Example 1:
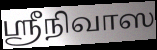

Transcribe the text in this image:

ஸ்ரீநிவாஸ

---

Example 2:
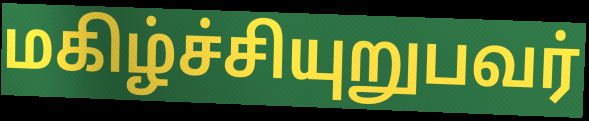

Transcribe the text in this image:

மகிழ்ச்சியுறுபவர்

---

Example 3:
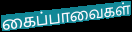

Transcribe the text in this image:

கைப்பாவைகள்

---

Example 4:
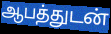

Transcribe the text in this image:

ஆபத்துடன்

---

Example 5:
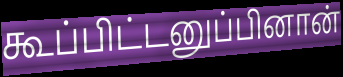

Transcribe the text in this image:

கூப்பிட்டனுப்பினான்